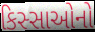
કિસ્સાઓનો